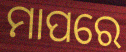
ମାପରେ